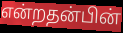
என்றதன்பின்